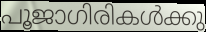
പൂജാഗിരികൾക്കു